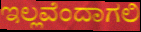
ಇಲ್ಲವೆಂದಾಗಲಿ